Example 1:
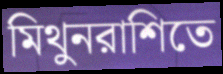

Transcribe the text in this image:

মিথুনরাশিতে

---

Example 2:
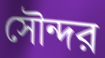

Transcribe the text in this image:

সৌন্দর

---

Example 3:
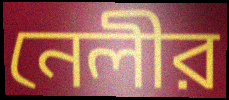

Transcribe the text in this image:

নেলীর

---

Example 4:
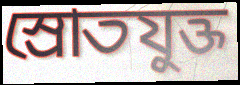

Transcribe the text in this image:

স্রোতযুক্ত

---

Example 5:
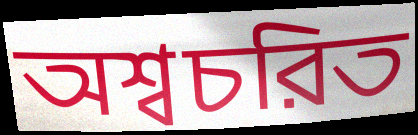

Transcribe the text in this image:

অশ্বচরিত